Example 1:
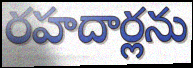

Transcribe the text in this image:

రహదార్లను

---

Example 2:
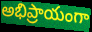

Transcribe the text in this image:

అభిప్రాయంగా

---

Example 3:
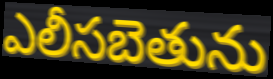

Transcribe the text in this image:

ఎలీసబెతును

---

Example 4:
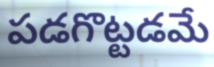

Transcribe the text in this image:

పడగొట్టడమే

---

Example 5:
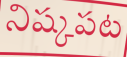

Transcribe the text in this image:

నిష్కపట